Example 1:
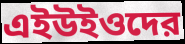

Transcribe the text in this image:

এইউইওদের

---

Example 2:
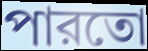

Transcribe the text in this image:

পারতো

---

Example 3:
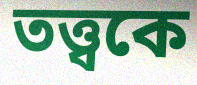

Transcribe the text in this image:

তত্ত্বকে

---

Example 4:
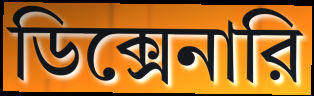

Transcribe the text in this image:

ডিক্সেনারি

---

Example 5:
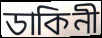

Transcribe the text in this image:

ডাকিনী